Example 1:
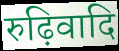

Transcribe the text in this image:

रुढ़िवादि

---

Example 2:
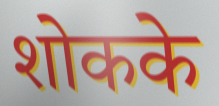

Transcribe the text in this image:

शोकके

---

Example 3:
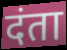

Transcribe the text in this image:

दंता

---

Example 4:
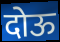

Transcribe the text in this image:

दोऊ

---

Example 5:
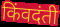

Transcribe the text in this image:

किंवदंती